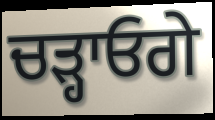
ਚੜ੍ਹਾਓਗੇ